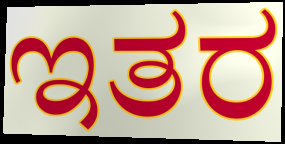
ಇತರ